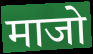
माजो